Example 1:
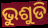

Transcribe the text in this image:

ଭୁଶୁଡି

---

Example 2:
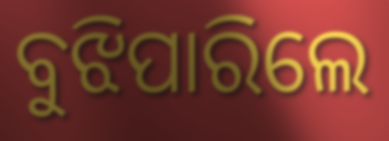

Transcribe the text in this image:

ବୁଝିପାରିଲେ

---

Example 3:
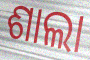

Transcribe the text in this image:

ଶାଲା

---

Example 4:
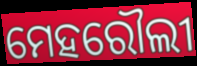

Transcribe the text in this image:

ମେହରୌଲୀ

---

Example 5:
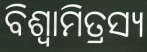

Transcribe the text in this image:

ବିଶ୍ଵାମିତ୍ରସ୍ୟ